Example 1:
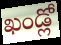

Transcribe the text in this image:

ఖండ్లో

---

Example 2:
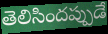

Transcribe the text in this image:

తెలిసిందప్పుడే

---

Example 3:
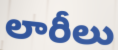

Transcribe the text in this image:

లారీలు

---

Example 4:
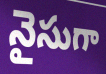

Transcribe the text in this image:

నైసుగా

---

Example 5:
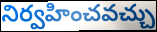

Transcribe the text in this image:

నిర్వహించవచ్చు